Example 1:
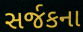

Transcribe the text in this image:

સર્જકના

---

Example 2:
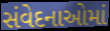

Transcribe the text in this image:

સંવેદનાઓમાં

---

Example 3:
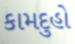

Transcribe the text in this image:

કામદુહો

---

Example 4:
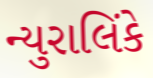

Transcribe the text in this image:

ન્યુરાલિંકે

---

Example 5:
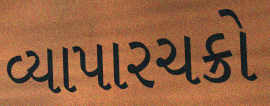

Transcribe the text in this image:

વ્યાપારચક્રો